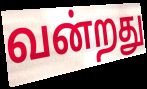
வன்றது